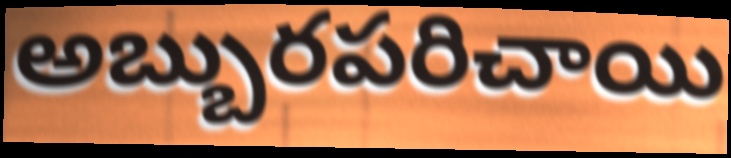
అబ్బురపరిచాయి